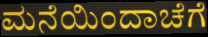
ಮನೆಯಿಂದಾಚೆಗೆ